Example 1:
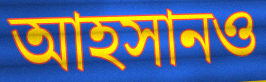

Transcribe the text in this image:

আহসানও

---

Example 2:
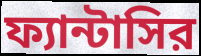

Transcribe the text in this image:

ফ্যান্টাসির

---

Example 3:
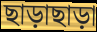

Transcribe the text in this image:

ছাড়াছাড়া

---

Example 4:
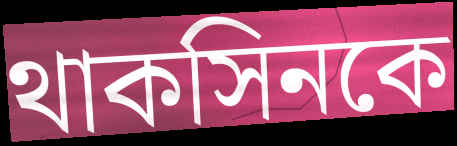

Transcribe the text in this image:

থাকসিনকে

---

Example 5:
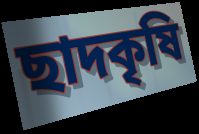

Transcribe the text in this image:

ছাদকৃষি